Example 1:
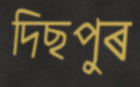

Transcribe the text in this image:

দিছপুৰ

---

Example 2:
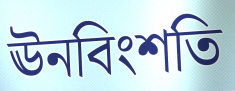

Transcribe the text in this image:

ঊনবিংশতি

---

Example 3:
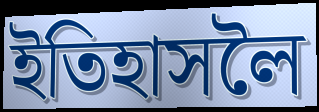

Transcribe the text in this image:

ইতিহাসলৈ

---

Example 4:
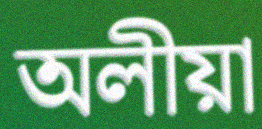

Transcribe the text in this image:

অলীয়া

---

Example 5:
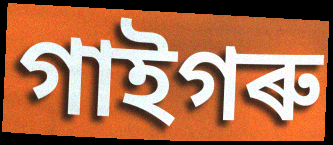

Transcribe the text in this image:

গাইগৰু